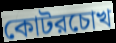
কোটরচোখ